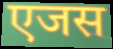
एजस